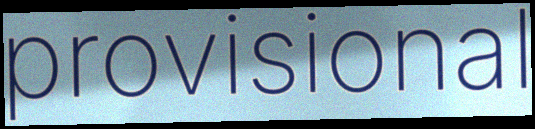
provisional